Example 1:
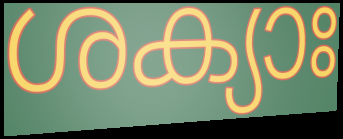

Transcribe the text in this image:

ശക്യാഃ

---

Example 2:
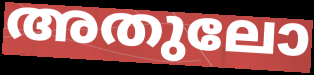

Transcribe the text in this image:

അതുലോ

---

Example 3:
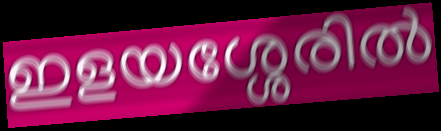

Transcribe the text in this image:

ഇളയശ്ശേരിൽ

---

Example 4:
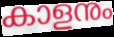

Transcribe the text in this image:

കാളനും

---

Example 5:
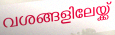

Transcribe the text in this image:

വശങ്ങളിലേയ്ക്ക്